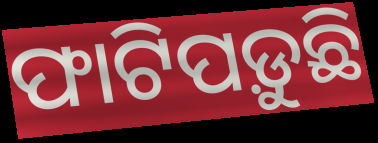
ଫାଟିପଡ଼ୁଛି